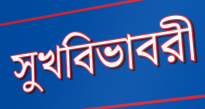
সুখবিভাবরী